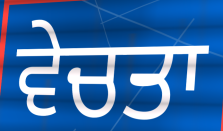
ਵੇਚਤਾ